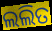
ଲଲିତ